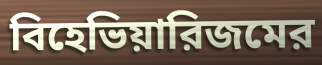
বিহেভিয়ারিজমের